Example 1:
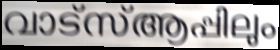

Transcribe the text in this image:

വാട്സ്ആപ്പിലും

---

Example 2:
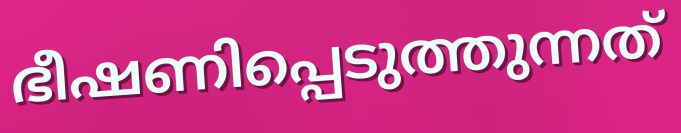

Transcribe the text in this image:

ഭീഷണിപ്പെടുത്തുന്നത്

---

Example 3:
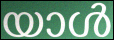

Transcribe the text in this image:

യാൾ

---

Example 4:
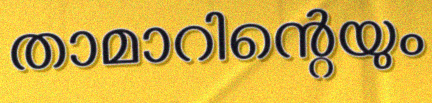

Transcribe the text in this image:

താമാറിന്റെയും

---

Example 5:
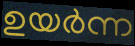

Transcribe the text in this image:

ഉയർന്ന